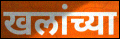
खलांच्या